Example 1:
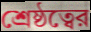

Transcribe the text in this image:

শ্রেষ্ঠত্বের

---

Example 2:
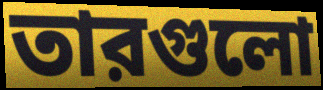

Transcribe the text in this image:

তারগুলো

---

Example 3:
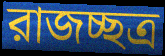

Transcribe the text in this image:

রাজচ্ছত্র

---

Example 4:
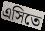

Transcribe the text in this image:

এসিতে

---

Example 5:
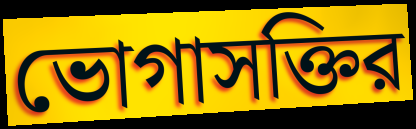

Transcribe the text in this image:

ভোগাসক্তির